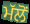
ਮੱਲੋਂ